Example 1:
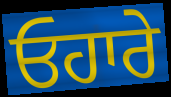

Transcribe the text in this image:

ਓਹਾਰੇ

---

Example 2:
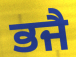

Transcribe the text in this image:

ਭਜੈ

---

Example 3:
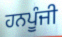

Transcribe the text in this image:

ਹਨਪੂੰਜੀ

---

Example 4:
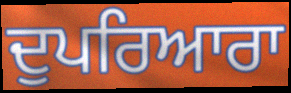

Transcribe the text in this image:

ਦੁਪਰਿਆਰਾ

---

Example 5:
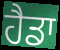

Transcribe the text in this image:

ਹੈਡਾ